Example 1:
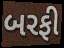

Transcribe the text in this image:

બરફી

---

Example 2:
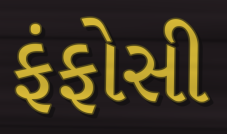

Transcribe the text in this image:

ફંફોસી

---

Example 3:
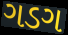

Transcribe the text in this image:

ગડગ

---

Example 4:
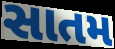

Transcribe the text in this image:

સાતમ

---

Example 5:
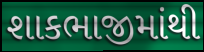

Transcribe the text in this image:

શાકભાજીમાંથી